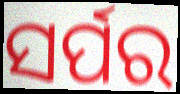
ସର୍ପର